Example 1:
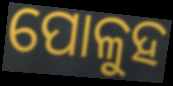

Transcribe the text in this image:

ପୋଳୁହ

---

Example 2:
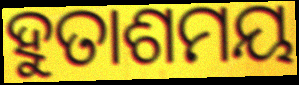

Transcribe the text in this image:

ହୁତାଶମୟ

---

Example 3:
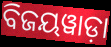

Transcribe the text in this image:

ବିଜୟୱାଡ଼ା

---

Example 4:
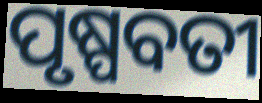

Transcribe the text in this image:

ପୃଷ୍ପବତୀ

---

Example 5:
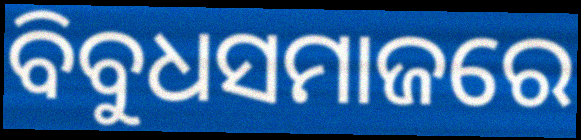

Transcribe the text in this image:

ବିବୁଧସମାଜରେ